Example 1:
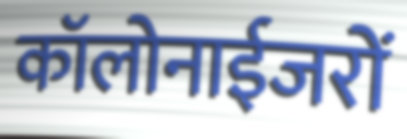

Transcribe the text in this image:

कॉलोनाईजरों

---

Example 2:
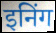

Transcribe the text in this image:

इनिंग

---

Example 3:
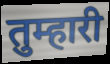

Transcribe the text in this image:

तुम्हारी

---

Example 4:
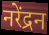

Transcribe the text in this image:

नरेंद्रन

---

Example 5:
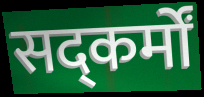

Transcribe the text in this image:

सद्कर्मों